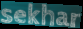
sekhar